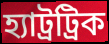
হ্যাট্রট্রিক